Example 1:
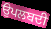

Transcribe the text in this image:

ਉਪਲਬਦੀ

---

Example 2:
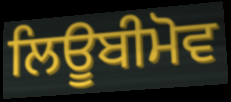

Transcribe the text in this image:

ਲਿਊਬੀਮੋਵ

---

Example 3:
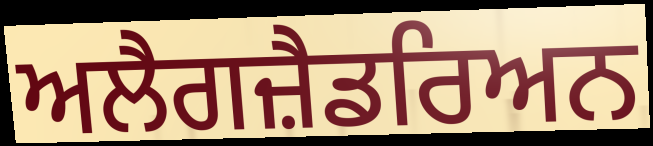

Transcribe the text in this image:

ਅਲੈਗਜ਼ੈਡਰਿਅਨ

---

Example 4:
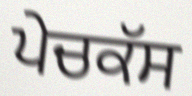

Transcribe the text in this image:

ਪੇਚਕੱਸ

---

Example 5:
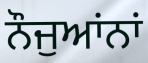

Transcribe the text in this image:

ਨੌਜੁਆਂਨਾਂ